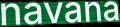
navana